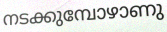
നടക്കുമ്പോഴാണു